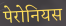
पेरोनियस